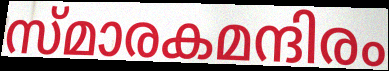
സ്മാരകമന്ദിരം